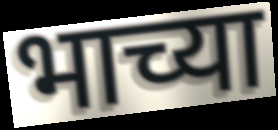
भाच्या